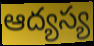
ఆద్యస్య